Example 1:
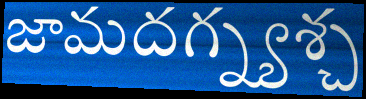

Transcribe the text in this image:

జామదగ్న్యశ్చ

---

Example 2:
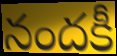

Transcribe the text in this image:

నందకీ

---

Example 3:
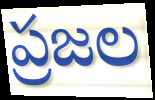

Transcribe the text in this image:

ప్రజల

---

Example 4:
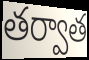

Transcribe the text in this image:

తర్వాత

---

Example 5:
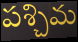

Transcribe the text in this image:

పశ్చిమ